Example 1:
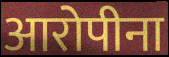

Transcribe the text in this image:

आरोपीना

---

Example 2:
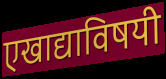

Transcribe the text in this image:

एखाद्याविषयी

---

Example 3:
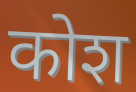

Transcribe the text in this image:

कोश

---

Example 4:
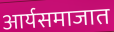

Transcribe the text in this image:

आर्यसमाजात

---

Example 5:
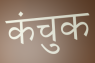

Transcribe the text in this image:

कंचुक